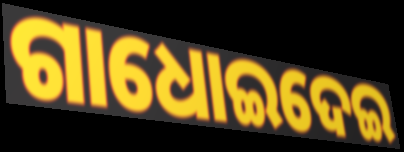
ଗାଧୋଇଦେଇ